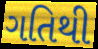
ગતિથી